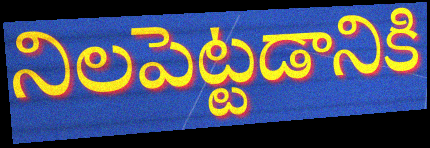
నిలపెట్టడానికి